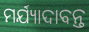
ମର୍ଯ୍ୟାଦାବନ୍ତ